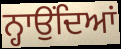
ਨ੍ਹਾਉਂਦਿਆਂ